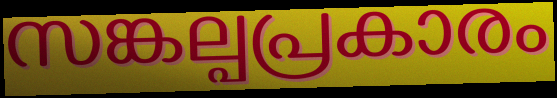
സങ്കല്പപ്രകാരം